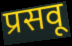
प्रसवू